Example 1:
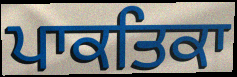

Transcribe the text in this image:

ਪਾਕਤਿਕਾ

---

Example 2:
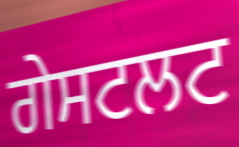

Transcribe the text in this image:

ਗੇਸਟਲਟ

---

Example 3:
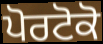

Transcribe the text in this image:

ਪੋਰਟੋਕੋ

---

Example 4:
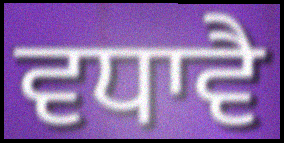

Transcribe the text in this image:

ਵਧਾਵੈ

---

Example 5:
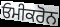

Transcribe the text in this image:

ਓਮੀਕਰੋਨ